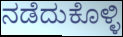
ನಡೆದುಕೊಳ್ಳಿ